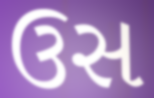
ઉસ